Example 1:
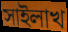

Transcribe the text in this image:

সাইলাখ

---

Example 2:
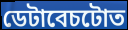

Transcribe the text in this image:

ডেটাবেচটোত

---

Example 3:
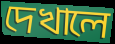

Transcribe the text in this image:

দেখালে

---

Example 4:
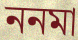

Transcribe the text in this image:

ননমা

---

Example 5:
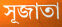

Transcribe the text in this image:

সূজাতা